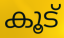
കൂട്